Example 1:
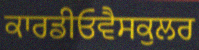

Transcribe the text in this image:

ਕਾਰਡੀਓਵੈਸਕੁਲਰ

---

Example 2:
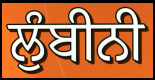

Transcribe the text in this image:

ਲੁੰਬੀਨੀ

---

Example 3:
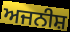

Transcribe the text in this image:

ਅਜਨੀਸ਼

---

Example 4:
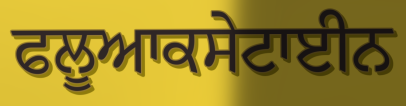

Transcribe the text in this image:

ਫਲੂਆਕਸੇਟਾਈਨ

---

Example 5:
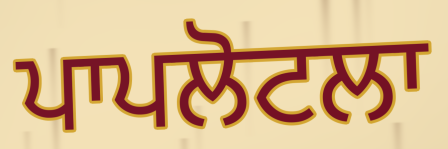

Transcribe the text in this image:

ਪਾਪਲੋਟਲਾ